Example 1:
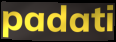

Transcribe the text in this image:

padati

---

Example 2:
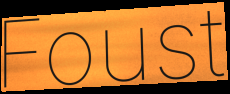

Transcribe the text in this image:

Foust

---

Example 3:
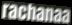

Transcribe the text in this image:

rachanaa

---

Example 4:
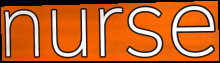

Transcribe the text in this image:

nurse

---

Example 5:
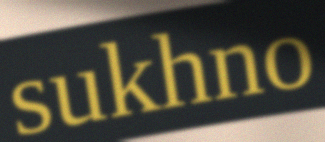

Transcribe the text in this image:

sukhno